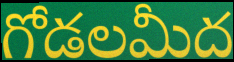
గోడలమీద